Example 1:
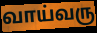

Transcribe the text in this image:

வாய்வரு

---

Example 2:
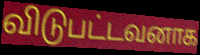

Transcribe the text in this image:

விடுபட்டவனாக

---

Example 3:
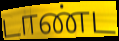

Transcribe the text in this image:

டாண்ட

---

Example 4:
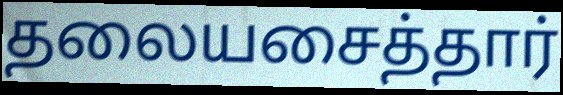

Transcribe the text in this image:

தலையசைத்தார்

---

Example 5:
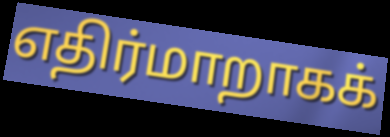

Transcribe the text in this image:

எதிர்மாறாகக்